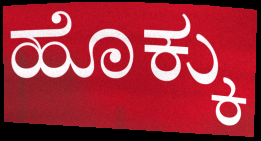
ಹೊಕ್ಕು